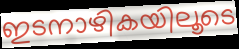
ഇടനാഴികയിലൂടെ